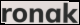
ronak